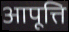
आपूत्ति